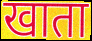
खाता